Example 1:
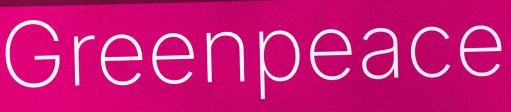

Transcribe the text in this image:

Greenpeace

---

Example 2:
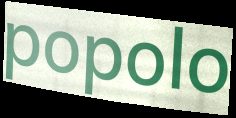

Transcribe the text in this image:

popolo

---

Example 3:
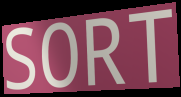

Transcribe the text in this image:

SORT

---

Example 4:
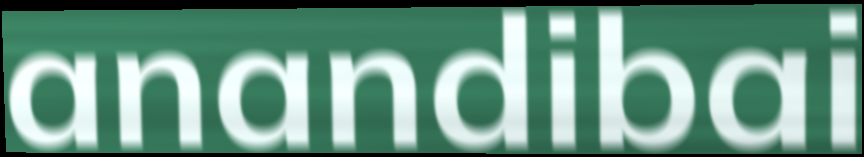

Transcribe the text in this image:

anandibai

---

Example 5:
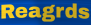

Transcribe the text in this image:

Reagrds